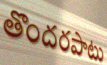
తొందరపాటు